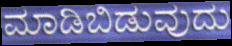
ಮಾಡಿಬಿಡುವುದು